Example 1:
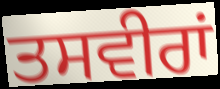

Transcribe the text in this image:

ਤਸਵੀਰਾਂ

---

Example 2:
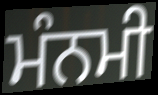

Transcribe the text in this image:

ਮੰਨਮੀ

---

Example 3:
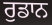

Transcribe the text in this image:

ਰੁਡਾਨ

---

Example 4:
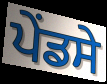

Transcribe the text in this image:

ਪੇਂਡਸੇ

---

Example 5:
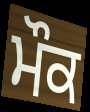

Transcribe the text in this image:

ਮੌਕ